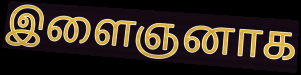
இளைஞனாக